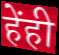
हेंही